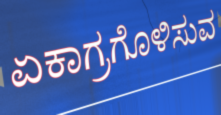
ಏಕಾಗ್ರಗೊಳಿಸುವ